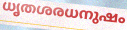
ധൃതശരധനുഷം